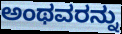
ಅಂಥವರನ್ನು